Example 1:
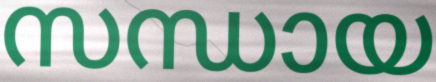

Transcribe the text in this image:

സന്ധായ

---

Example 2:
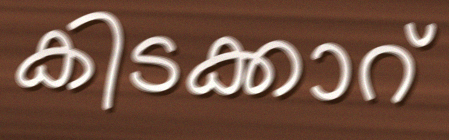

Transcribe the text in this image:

കിടക്കാറ്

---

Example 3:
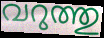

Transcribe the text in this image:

വറുത്തു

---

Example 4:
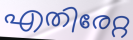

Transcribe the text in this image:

എതിരേറ്റ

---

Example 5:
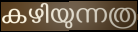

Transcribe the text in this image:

കഴിയുന്നത്ര